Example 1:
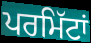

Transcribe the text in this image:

ਪਰਮਿੱਟਾਂ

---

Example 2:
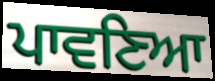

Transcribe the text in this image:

ਪਾਵਣਿਆ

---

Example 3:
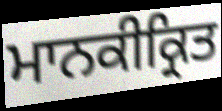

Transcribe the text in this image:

ਮਾਨਕੀਕ੍ਰਿਤ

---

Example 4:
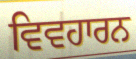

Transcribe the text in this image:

ਵਿਵਹਾਰਨ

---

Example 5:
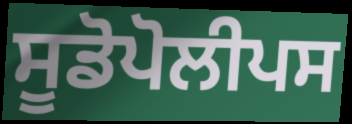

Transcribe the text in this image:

ਸੂਡੋਪੋਲੀਪਸ